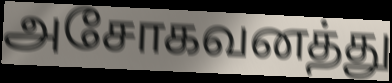
அசோகவனத்து